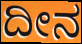
ದೀನ